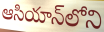
ఆసియాన్‌లోని